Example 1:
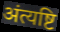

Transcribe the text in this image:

अंत्यष्टि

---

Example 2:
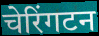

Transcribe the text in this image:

चेरिंगटन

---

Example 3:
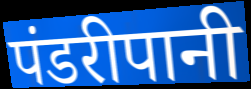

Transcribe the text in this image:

पंडरीपानी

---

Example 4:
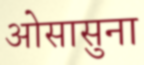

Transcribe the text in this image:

ओसासुना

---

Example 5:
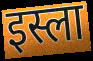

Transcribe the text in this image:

इस्ला